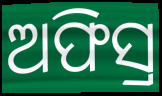
ଅଫିସ୍ର